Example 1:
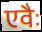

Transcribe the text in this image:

एवैः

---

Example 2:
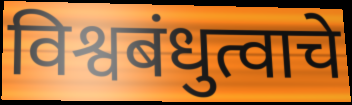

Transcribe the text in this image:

विश्वबंधुत्वाचे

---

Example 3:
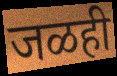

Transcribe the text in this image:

जळही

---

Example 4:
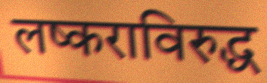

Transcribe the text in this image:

लष्कराविरुद्ध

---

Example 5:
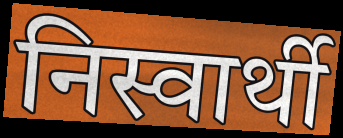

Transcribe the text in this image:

निस्वार्थी